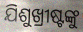
ଯିଶୁଖ୍ରୀଷ୍ଟଙ୍କୁ